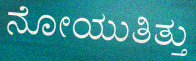
ನೋಯುತಿತ್ತು